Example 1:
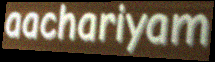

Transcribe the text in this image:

aachariyam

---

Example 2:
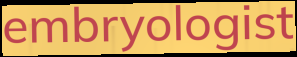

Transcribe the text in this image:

embryologist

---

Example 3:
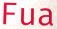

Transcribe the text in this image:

Fua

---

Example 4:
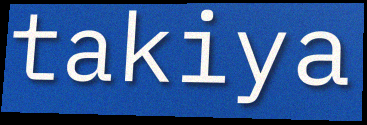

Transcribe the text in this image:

takiya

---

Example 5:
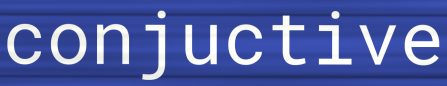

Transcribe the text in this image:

conjuctive